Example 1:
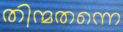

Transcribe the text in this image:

തിന്മതന്നെ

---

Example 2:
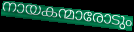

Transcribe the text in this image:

നായകന്മാരോടും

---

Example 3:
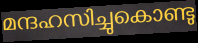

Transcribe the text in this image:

മന്ദഹസിച്ചുകൊണ്ടു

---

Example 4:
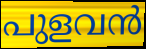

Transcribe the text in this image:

പുളവൻ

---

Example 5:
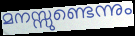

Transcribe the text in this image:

മനസ്സുണ്ടെന്നും